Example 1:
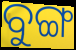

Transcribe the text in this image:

ବୁଙ୍ଗ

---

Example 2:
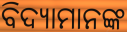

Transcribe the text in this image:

ବିଦ୍ୟାମାନଙ୍କ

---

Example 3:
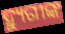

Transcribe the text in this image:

ହ୍ୟୁଗୀଙ୍କ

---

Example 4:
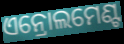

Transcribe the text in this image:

ଏନ୍ରୋଲମେଣ୍ଟ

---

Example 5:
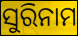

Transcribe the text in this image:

ସୁରିନାମ